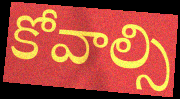
కోవాల్సి